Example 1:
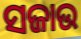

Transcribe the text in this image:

ସଜାଉ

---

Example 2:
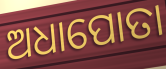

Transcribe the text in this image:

ଅଧାପୋତା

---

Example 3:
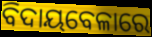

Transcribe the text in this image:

ବିଦାୟବେଳାରେ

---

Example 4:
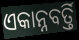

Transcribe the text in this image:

ଏକାନ୍ନବର୍ତ୍ତି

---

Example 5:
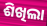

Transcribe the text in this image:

ଶିଖିଲା